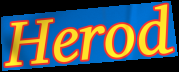
Herod